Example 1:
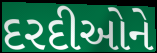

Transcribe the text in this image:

દરદીઓને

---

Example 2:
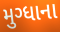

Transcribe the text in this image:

મુગ્ધાના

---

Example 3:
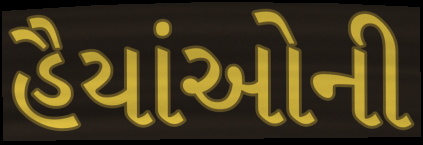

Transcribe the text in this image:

હૈયાંઓની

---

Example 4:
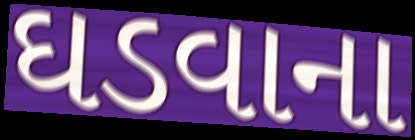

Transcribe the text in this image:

ઘડવાના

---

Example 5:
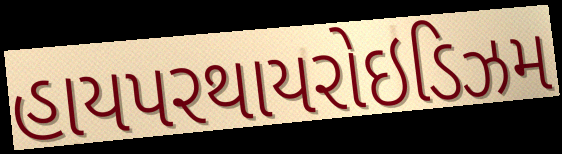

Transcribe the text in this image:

હાયપરથાયરોઇડિઝમ